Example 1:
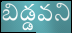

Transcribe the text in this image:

బిడ్డవని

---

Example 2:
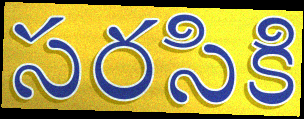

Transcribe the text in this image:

సరసికి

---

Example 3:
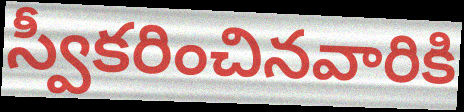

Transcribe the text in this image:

స్వీకరించినవారికి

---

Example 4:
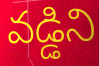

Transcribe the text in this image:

వడ్డిని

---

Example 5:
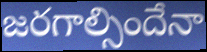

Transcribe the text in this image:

జరగాల్సిందేనా